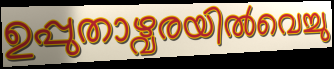
ഉപ്പുതാഴ്വരയിൽവെച്ചു